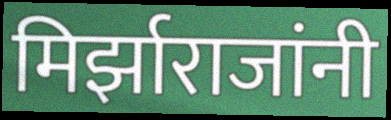
मिर्झाराजांनी